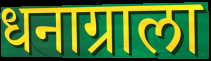
धनाग्राला